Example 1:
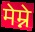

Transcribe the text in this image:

मेम्ने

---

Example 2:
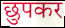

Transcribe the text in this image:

छुपकर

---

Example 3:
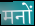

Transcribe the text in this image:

मनों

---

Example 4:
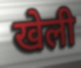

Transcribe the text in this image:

खेली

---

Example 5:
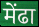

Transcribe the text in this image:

मेंढा